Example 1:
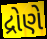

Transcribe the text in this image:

દ્રોણે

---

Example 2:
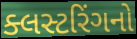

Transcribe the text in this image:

ક્લસ્ટરિંગનો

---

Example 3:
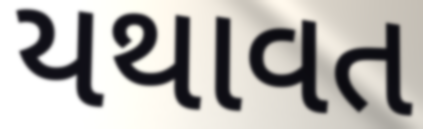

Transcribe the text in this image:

યથાવત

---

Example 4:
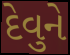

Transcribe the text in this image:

દેવુને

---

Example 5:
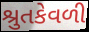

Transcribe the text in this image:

શ્રુતકેવળી